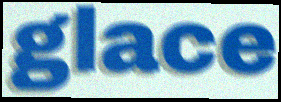
glace